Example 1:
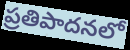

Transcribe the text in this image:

ప్రతిపాదనలో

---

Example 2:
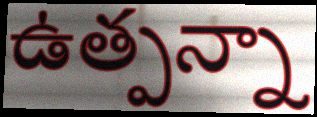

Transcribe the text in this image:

ఉత్పన్నా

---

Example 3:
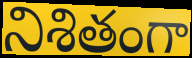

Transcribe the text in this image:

నిశితంగా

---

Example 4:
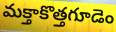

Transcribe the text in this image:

మక్తాకొత్తగూడెం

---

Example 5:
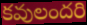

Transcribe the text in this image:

కవులందరి